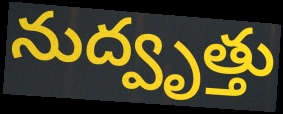
నుద్వృత్తు